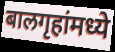
बालगृहांमध्ये